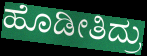
ಹೊಡೀತಿದ್ರು